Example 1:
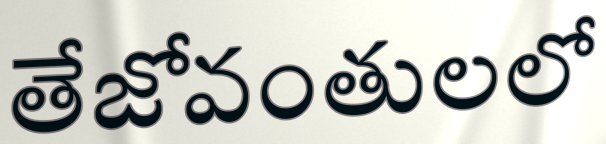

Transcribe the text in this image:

తేజోవంతులలో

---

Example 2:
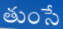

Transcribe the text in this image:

తుంసే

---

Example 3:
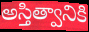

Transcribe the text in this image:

అస్తిత్వానికి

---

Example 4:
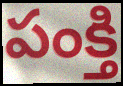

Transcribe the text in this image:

పంక్తి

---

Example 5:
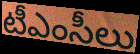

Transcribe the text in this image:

టీఎంసీలు